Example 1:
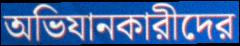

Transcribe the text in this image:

অভিযানকারীদের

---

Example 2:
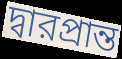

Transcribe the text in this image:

দ্বারপ্রান্ত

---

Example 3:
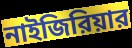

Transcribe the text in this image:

নাইজিরিয়ার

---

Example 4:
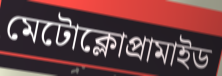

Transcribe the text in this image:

মেটোক্লোপ্রামাইড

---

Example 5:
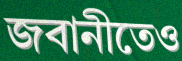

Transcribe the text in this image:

জবানীতেও